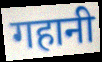
गहानी